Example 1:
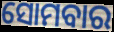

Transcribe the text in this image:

ସୋମବାର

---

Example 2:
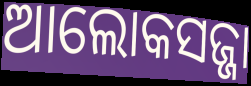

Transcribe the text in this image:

ଆଲୋକସଜ୍ଜା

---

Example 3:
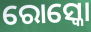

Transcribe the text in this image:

ରୋସ୍କୋ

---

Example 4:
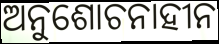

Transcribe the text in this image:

ଅନୁଶୋଚନାହୀନ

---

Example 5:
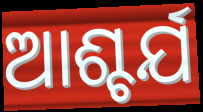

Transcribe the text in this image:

ଆଶ୍ଚର୍ଯ